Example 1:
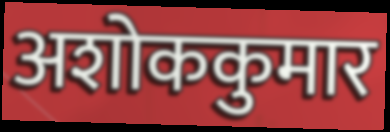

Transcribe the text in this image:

अशोककुमार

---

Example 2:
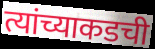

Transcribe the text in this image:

त्यांच्याकडची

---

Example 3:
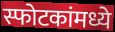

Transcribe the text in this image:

स्फोटकांमध्ये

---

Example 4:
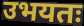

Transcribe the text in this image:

उभयतः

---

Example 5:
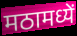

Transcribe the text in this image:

मठामध्यें